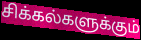
சிக்கல்களுக்கும்